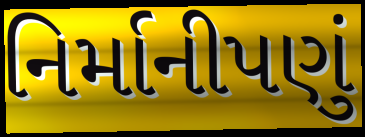
નિર્માનીપણું